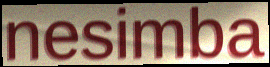
nesimba